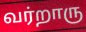
வர்றாரு